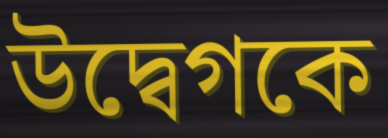
উদ্বেগকে